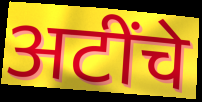
अटींचे